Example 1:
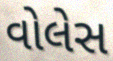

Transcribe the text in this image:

વોલેસ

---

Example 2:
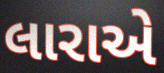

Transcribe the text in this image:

લારાએ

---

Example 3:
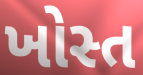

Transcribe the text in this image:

ખોસ્ત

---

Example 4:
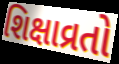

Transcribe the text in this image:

શિક્ષાવ્રતો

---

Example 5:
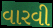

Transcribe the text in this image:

વારવી